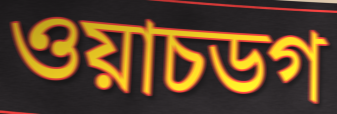
ওয়াচডগ